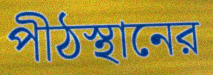
পীঠস্থানের